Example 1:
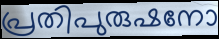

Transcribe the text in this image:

പ്രതിപുരുഷനോ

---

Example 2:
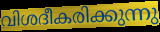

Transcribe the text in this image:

വിശദീകരിക്കുന്നു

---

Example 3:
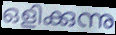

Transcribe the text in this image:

ഒളിക്കുന്നു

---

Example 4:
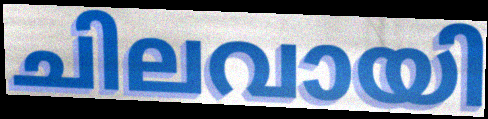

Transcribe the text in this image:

ചിലവായി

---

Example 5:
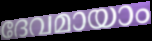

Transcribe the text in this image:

ദേവമായാം